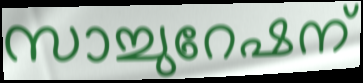
സാച്ചുറേഷന്